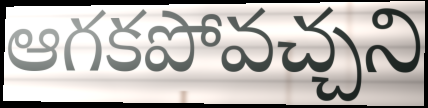
ఆగకపోవచ్చని